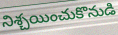
నిశ్చయించుకొనుడి